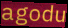
agodu